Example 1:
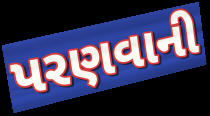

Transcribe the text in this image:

પરણવાની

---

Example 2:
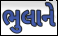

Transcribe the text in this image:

ભુલાને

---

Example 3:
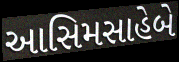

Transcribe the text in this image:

આસિમસાહેબે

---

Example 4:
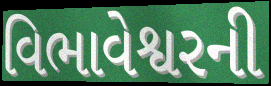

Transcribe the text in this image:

વિભાવેશ્વરની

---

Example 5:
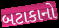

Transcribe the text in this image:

બટાકાનો